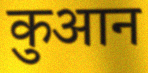
कुआन